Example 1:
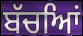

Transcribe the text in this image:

ਬੱਚਆਿਂ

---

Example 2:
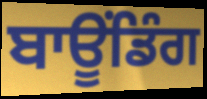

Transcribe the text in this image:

ਬਾਊਂਡਿੰਗ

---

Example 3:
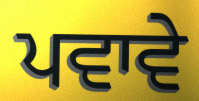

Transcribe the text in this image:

ਪਵਾਵੇ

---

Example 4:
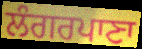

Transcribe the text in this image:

ਲੰਗਰਪਾਣਾ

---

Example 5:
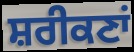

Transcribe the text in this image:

ਸ਼ਰੀਕਣਾਂ